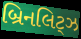
બ્રિનલિટ્ઝ